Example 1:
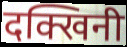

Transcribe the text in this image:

दक्खिनी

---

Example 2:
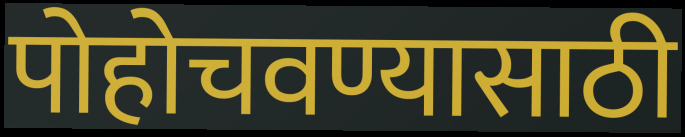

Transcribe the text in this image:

पोहोचवण्यासाठी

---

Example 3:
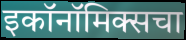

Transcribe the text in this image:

इकॉनॉमिक्सचा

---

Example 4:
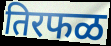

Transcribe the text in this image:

तिरफळ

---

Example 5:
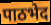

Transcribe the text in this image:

पाठभेद